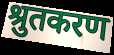
श्रुतकरण